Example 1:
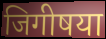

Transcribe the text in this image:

जिगीषया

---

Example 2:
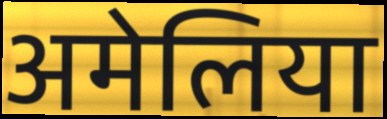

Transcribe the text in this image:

अमेलिया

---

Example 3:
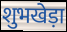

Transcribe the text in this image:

शुभखेड़ा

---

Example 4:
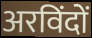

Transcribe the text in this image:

अरविंदों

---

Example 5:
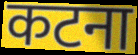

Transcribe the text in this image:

कटना